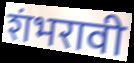
शंभरावी